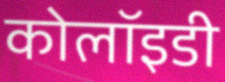
कोलॉइडी